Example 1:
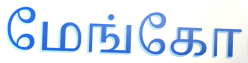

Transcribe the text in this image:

மேங்கோ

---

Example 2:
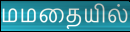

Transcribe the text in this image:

மமதையில்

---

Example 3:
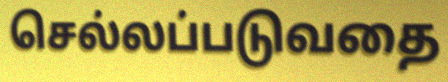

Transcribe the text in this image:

செல்லப்படுவதை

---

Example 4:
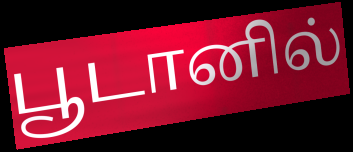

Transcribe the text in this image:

பூடானில்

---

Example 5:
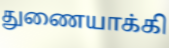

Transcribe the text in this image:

துணையாக்கி